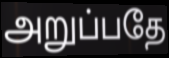
அறுப்பதே